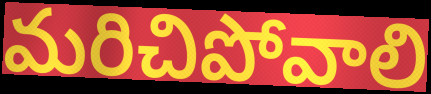
మరిచిపోవాలి